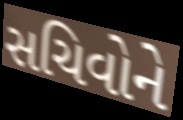
સચિવોને